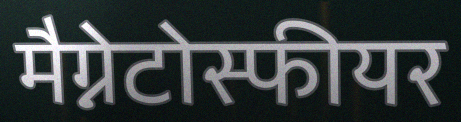
मैग्नेटोस्फीयर